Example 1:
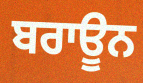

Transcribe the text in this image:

ਬਰਾਊਨ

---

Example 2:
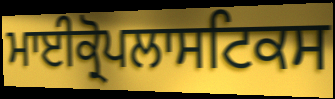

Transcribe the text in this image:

ਮਾਈਕ੍ਰੋਪਲਾਸਟਿਕਸ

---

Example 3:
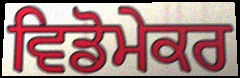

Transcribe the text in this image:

ਵਿਡੋਮੇਕਰ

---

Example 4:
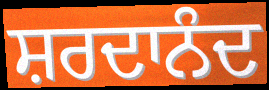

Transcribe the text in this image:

ਸ਼ਰਦਾਨੰਦ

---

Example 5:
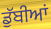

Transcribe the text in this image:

ਡੁੱਬੀਆਂ